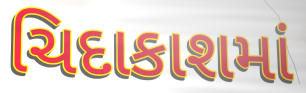
ચિદાકાશમાં